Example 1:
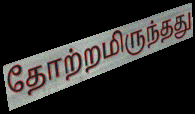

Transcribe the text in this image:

தோற்றமிருந்தது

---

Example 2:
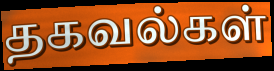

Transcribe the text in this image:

தகவல்கள்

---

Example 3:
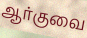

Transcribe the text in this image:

ஆர்குவை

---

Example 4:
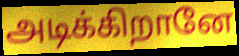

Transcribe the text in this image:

அடிக்கிறானே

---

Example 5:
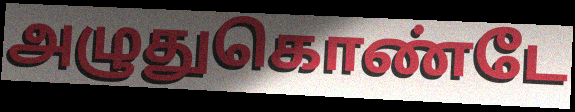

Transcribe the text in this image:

அழுதுகொண்டே